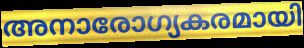
അനാരോഗ്യകരമായി